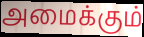
அமைக்கும்